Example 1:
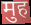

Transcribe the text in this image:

मुह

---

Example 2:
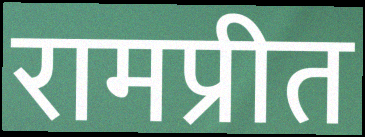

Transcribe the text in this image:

रामप्रीत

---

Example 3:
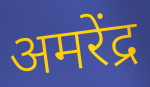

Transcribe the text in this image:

अमरेंद्र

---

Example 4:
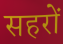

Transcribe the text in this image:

सहरों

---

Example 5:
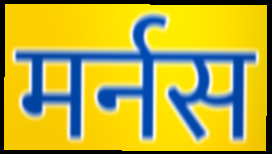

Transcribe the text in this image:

मर्नस